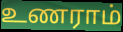
உணராம்